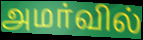
அமர்வில்